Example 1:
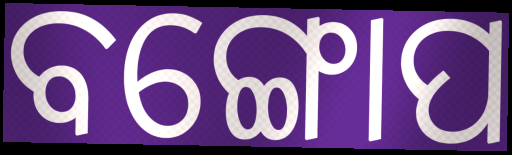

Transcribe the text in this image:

ବଙ୍ଗୋପ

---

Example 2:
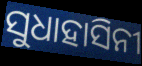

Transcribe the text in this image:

ସୁଧାହାସିନୀ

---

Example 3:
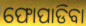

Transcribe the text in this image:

ଫୋପାଡିବା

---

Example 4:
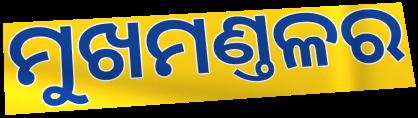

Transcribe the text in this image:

ମୁଖମଣ୍ତଳର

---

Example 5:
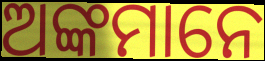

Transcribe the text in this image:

ଅଙ୍କମାନେ